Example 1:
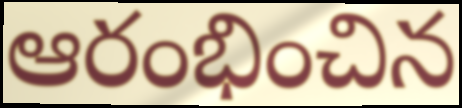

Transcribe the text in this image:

ఆరంభించిన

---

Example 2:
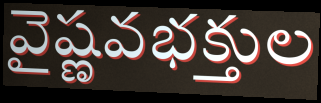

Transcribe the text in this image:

వైష్ణవభక్తుల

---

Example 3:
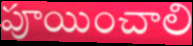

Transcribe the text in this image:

పూయించాలి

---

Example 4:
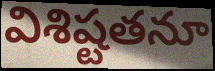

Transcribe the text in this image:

విశిష్టతనూ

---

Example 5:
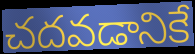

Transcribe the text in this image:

చదవడానికే